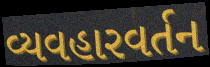
વ્યવહારવર્તન